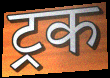
ट्रक